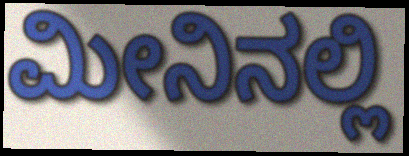
ಮೀನಿನಲ್ಲಿ